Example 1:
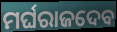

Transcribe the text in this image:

ମର୍ଘରାଜଦେବ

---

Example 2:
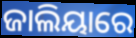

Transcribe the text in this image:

ଜାଲିୟାରେ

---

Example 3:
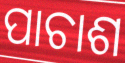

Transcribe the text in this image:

ପାଚାଶ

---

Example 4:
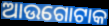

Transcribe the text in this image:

ଆଉଗୋଟାକ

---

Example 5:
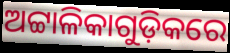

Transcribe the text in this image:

ଅଟ୍ଟାଳିକାଗୁଡ଼ିକରେ